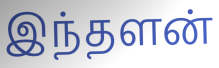
இந்தளன்